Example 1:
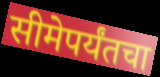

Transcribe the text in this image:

सीमेपर्यंतचा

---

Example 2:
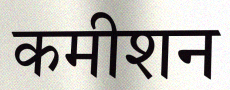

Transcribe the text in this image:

कमीशन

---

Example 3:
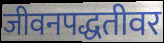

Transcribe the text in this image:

जीवनपद्धतीवर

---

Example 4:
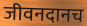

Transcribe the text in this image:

जीवनदानच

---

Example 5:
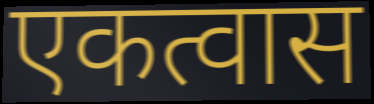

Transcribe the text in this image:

एकत्वास